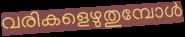
വരികളെഴുതുമ്പോൾ